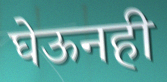
घेऊनही